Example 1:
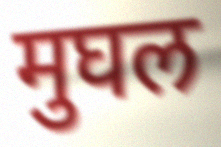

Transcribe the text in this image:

मुघल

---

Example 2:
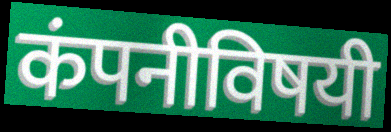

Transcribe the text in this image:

कंपनीविषयी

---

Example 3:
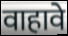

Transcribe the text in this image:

वाहावे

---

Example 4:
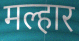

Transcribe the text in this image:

मल्हार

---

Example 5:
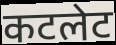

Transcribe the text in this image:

कटलेट